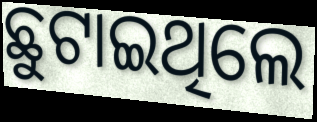
ଛୁଟାଇଥିଲେ